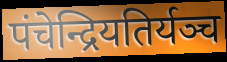
पंचेन्द्रियतिर्यञ्च